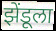
झेंडूला